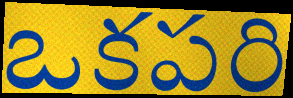
ఒకపరి